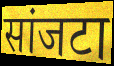
सांजटा